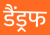
डैंड्रफ